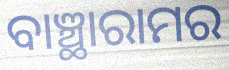
ବାଞ୍ଛାରାମର